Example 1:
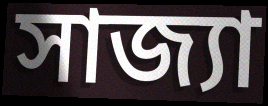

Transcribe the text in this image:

সাজ্যা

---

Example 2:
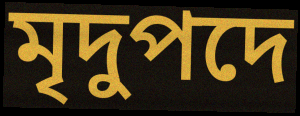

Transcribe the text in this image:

মৃদুপদে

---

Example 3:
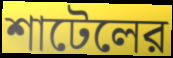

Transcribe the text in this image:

শাটেলের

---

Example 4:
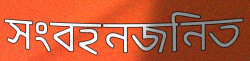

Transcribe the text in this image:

সংবহনজনিত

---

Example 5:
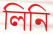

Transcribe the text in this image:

লিনি